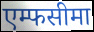
एम्फसीमा